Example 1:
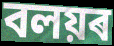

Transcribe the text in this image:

বলয়ৰ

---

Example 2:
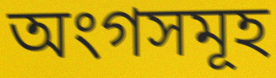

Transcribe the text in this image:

অংগসমূহ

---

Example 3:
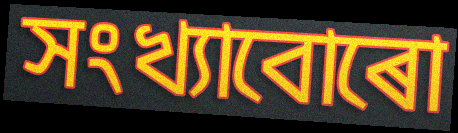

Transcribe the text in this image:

সংখ্যাবোৰো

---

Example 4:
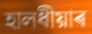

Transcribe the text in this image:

হালধীয়াৰ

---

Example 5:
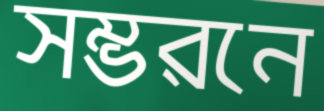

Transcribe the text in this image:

সম্ভৱনে